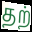
தற்